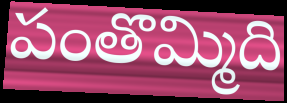
పంతొమ్మిది